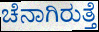
ಚೆನಾಗಿರುತ್ತೆ